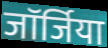
जॉर्जिया